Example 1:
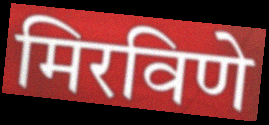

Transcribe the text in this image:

मिरविणे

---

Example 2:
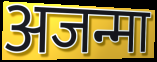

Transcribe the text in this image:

अजन्मा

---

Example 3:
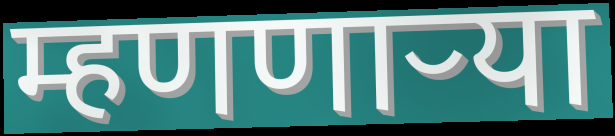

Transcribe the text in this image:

म्हणणाऱ्या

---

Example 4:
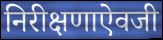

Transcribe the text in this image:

निरीक्षणाऐवजी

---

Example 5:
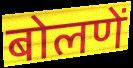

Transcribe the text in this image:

बोलणें